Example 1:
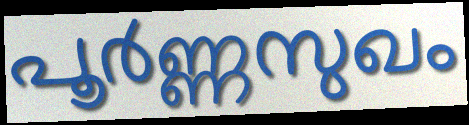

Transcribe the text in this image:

പൂർണ്ണസുഖം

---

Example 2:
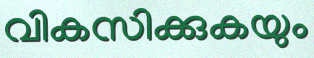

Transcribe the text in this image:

വികസിക്കുകയും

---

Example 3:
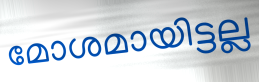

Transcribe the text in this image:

മോശമായിട്ടല്ല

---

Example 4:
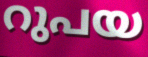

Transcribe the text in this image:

റുപയ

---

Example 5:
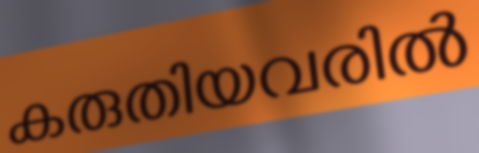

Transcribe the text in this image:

കരുതിയവരിൽ